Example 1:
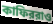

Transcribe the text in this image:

কাফিররাও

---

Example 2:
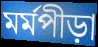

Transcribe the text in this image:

মর্মপীড়া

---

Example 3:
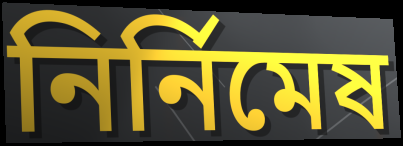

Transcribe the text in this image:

নির্নিমেষ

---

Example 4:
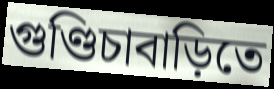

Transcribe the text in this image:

গুণ্ডিচাবাড়িতে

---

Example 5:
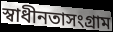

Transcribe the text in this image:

স্বাধীনতাসংগ্রাম